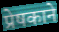
प्रेषकाने